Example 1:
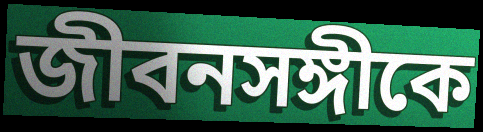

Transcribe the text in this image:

জীবনসঙ্গীকে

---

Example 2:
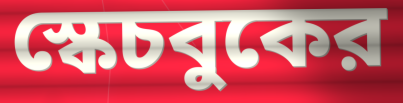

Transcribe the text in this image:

স্কেচবুকের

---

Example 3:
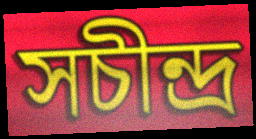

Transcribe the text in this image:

সচীন্দ্র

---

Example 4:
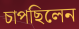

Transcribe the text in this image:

চাপছিলেন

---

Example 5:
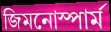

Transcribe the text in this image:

জিমনোস্পার্ম